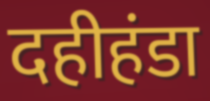
दहीहंडा